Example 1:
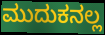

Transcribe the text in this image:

ಮುದುಕನಲ್ಲ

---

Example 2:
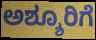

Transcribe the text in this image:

ಅಶ್ಶೂರಿಗೆ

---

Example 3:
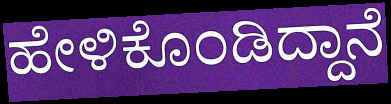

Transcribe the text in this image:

ಹೇಳಿಕೊಂಡಿದ್ದಾನೆ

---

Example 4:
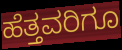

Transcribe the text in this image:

ಹೆತ್ತವರಿಗೂ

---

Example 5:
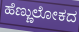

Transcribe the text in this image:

ಹೆಣ್ಣುಲೋಕದ